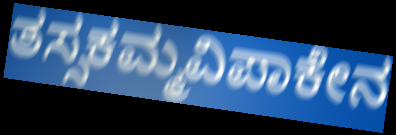
ತಸ್ಸಕಮ್ಮವಿಪಾಕೇನ